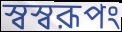
স্বস্বরূপং